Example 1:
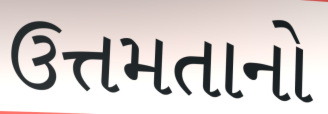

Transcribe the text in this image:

ઉત્તમતાનો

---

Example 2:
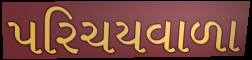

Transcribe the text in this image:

પરિચયવાળા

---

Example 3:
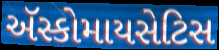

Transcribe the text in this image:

ઍસ્કોમાયસેટિસ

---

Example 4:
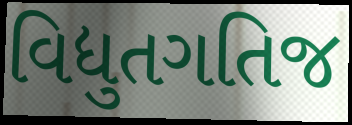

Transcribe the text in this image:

વિદ્યુતગતિજ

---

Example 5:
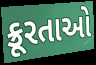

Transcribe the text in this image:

ક્રૂરતાઓ